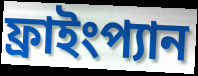
ফ্রাইংপ্যান